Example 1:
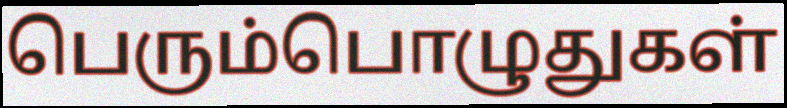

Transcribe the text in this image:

பெரும்பொழுதுகள்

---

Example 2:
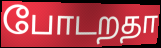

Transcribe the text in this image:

போடறதா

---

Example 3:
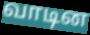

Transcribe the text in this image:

வாடின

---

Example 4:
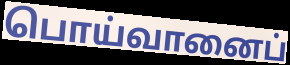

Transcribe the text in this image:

பொய்வானைப்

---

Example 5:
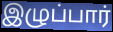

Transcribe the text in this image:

இழுப்பார்